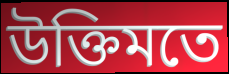
উক্তিমতে